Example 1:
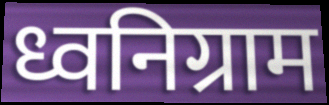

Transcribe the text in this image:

ध्वनिग्राम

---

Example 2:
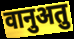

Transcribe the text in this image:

वानुअतु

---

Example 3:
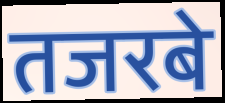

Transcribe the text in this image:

तजरबे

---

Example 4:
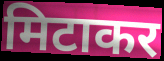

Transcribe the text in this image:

मिटाकर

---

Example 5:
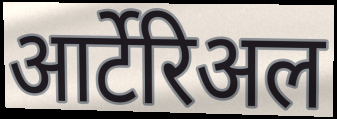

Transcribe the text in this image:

आर्टेरिअल